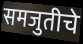
समजुतीचे